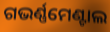
ଗଭର୍ଣ୍ଣମେଣ୍ଟାଲ